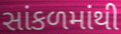
સાંકળમાંથી